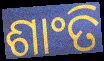
ଶାଂତି